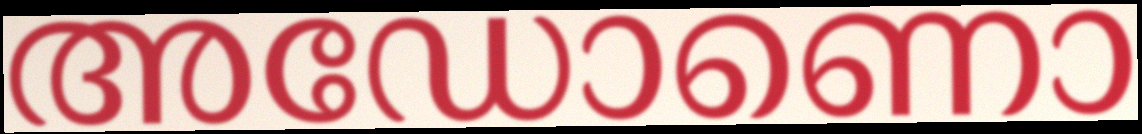
അഡോണൊ